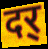
दर्